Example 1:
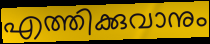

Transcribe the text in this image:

എത്തിക്കുവാനും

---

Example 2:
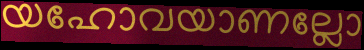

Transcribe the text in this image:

യഹോവയാണല്ലോ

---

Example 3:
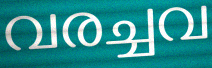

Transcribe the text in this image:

വരച്ചവ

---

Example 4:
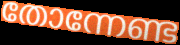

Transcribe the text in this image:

തോന്നേണ്ട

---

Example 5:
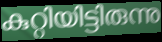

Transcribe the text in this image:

കുറ്റിയിട്ടിരുന്നു